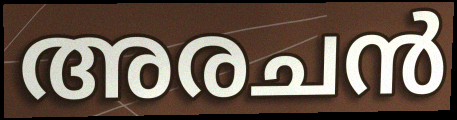
അരചൻ